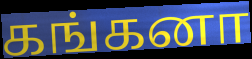
கங்கனா